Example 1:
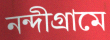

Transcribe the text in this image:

নন্দীগ্রামে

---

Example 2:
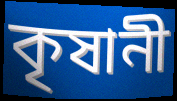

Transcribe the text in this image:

কৃষানী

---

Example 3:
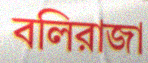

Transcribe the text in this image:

বলিরাজা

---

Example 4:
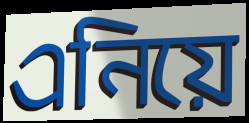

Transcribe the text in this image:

এনিয়ে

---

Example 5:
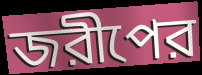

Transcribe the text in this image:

জরীপের